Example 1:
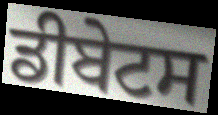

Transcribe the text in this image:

ਡੀਬੇਟਸ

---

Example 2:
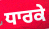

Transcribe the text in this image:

ਧਾਰਕੇ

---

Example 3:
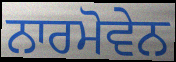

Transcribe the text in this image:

ਨਾਰਮੋਵੇਨ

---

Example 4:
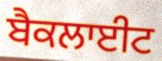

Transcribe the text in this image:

ਬੈਕਲਾਈਟ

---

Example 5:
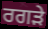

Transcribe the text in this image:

ਰਗੜੇ